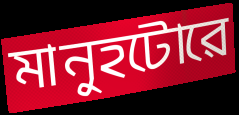
মানুহটোৱে